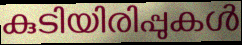
കുടിയിരിപ്പുകൾ